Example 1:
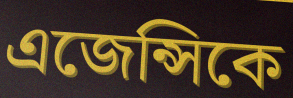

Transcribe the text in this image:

এজেন্সিকে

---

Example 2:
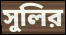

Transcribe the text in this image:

সুলির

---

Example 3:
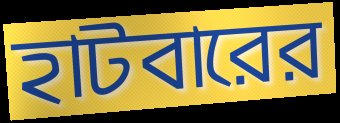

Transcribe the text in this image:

হাটবারের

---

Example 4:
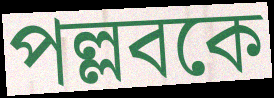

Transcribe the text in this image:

পল্লবকে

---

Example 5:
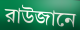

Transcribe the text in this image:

রাউজানে